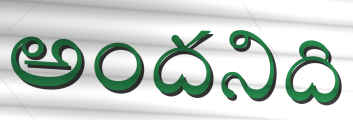
అందనిది